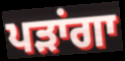
ਪੜਾਂਗਾ